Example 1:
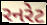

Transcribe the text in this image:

રનરેટ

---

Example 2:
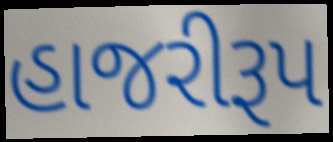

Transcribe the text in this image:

હાજરીરૂપ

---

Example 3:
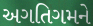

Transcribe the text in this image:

અગતિગમને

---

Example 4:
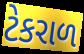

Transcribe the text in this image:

ટેકરાળ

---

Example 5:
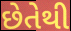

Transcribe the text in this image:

છેતેથી